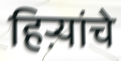
हिऱ्‍यांचे